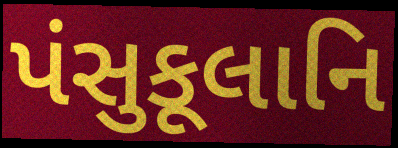
પંસુકૂલાનિ